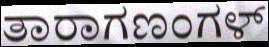
ತಾರಾಗಣಂಗಳ್